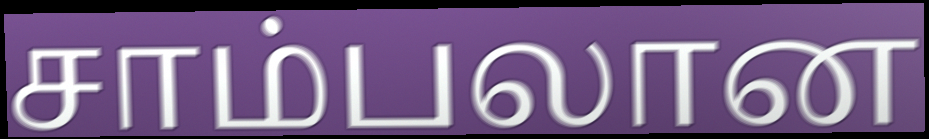
சாம்பலான